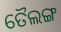
ତୈଲଙ୍ଗ